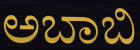
ಅಬಾಬಿ